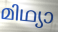
മിഥ്യാ